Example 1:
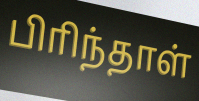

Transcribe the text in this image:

பிரிந்தாள்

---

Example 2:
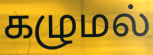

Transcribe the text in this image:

கழுமல்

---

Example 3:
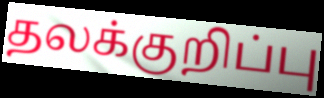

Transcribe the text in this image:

தலக்குறிப்பு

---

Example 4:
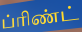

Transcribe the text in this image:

ப்ரிண்ட்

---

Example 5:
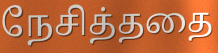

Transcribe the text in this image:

நேசித்ததை